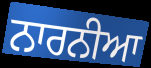
ਨਾਰਨੀਆ